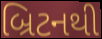
બ્રિટનથી